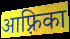
आफ़्रिका